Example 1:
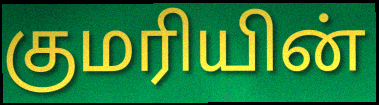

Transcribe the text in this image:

குமரியின்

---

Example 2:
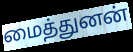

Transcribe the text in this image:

மைத்துனன்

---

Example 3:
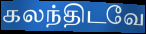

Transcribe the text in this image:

கலந்திடவே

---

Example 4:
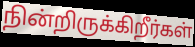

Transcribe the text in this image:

நின்றிருக்கிறீர்கள்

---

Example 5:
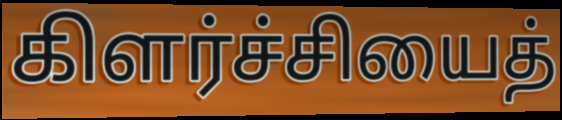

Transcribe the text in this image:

கிளர்ச்சியைத்